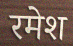
रमेश